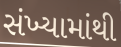
સંખ્યામાંથી